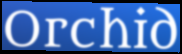
Orchid